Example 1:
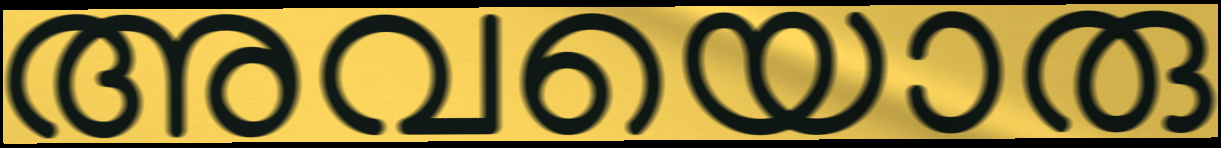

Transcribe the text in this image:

അവയൊരു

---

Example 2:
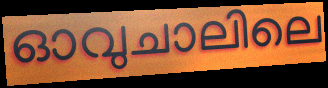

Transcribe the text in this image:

ഓവുചാലിലെ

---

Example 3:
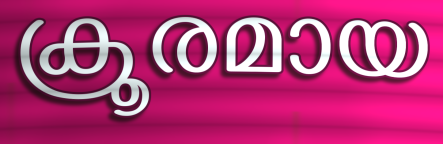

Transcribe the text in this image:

ക്രൂരമായ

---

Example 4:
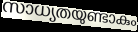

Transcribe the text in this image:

സാധ്യതയുണ്ടാകും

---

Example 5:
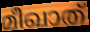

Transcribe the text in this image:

മീഖാത്